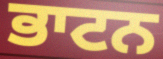
ਭਾਟਨ